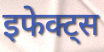
इफेक्ट्स